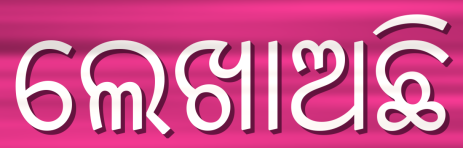
ଲେଖାଅଛି